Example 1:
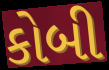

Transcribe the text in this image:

કોબી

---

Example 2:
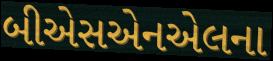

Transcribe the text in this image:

બીએસએનએલના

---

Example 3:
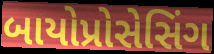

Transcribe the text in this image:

બાયોપ્રોસેસિંગ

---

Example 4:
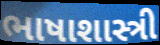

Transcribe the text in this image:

ભાષાશાસ્ત્રી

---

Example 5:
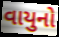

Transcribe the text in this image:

વાયુનો